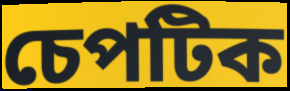
চেপটিক